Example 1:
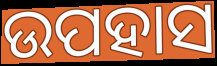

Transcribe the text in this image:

ଉପହାସ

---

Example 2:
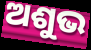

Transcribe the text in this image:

ଅଶୁଭ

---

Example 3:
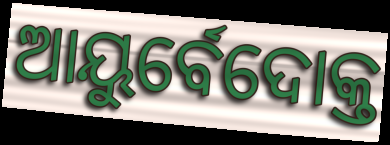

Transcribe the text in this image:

ଆୟୁର୍ବେଦୋକ୍ତ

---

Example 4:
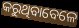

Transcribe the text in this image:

କରୁଥିବାବେଳେ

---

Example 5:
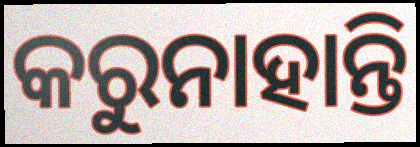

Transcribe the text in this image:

କରୁନାହାନ୍ତି